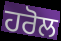
ਹਰੋਲ